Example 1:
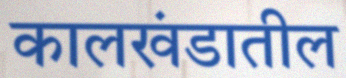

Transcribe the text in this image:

कालखंडातील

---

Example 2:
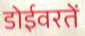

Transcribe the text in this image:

डोईवरतें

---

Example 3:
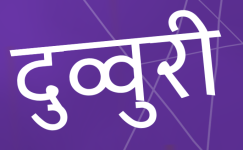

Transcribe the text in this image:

दुव्वुरी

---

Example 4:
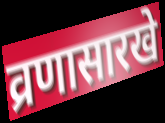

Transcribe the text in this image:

व्रणासारखे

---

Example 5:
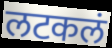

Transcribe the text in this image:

लटकलं